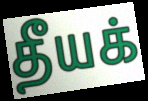
தீயக்